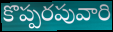
కొప్పరపువారి